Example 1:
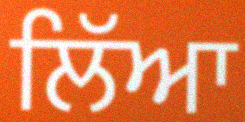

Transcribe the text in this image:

ਲਿੱਆ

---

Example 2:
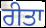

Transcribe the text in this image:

ਰੀਤਾ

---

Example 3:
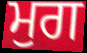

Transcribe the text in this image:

ਮੁਗ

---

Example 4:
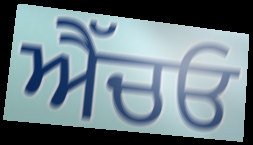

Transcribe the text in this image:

ਐੱਚਓ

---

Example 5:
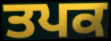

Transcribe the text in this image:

ਤਪਕ